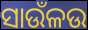
ସାଉଁଳଉ